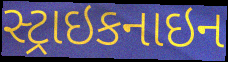
સ્ટ્રાઇકનાઇન